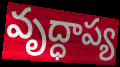
వృద్ధాప్య